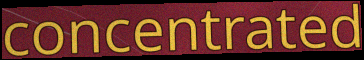
concentrated